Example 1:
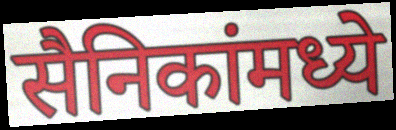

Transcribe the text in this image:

सैनिकांमध्ये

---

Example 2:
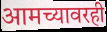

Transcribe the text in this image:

आमच्यावरही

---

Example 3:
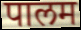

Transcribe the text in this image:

पालम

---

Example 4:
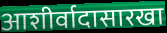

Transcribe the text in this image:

आशीर्वादासारखा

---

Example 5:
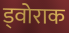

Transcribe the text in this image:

ड्वोराक